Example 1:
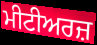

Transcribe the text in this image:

ਮੀਟੀਅਰਜ਼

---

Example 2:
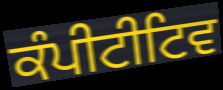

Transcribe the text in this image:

ਕੰਪੀਟੀਟਿਵ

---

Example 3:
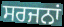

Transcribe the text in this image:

ਸਰਜਨਾਂ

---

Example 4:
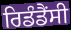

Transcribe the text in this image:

ਰਿਡੰਡੈਂਸੀ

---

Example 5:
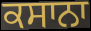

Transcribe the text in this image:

ਕਸਾਨਾ